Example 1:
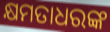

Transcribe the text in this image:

କ୍ଷମତାଧରଙ୍କ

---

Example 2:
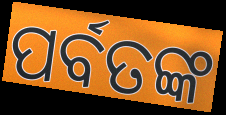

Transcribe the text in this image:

ପର୍ବତଙ୍କ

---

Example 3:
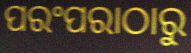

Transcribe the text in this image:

ପରଂପରାଠାରୁ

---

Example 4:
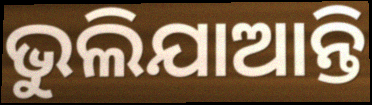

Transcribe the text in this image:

ଭୁଲିଯାଆନ୍ତି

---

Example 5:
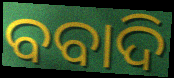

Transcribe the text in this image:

ବବାଦି